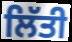
ਲਿੱਤੀ